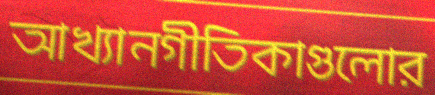
আখ্যানগীতিকাগুলোর